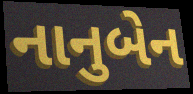
નાનુબેન